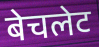
बेचलेट